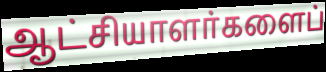
ஆட்சியாளர்களைப்